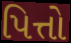
પિત્તો